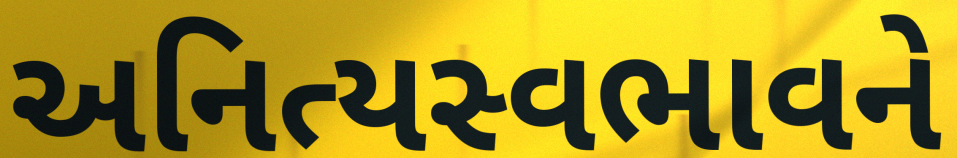
અનિત્યસ્વભાવને